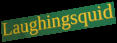
Laughingsquid